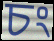
চং